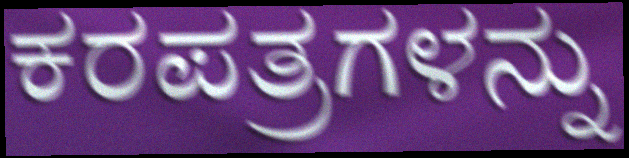
ಕರಪತ್ರಗಳನ್ನು